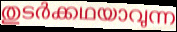
തുടർക്കഥയാവുന്ന